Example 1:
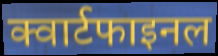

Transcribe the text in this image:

क्वार्टफाइनल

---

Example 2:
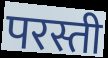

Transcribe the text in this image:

परस्ती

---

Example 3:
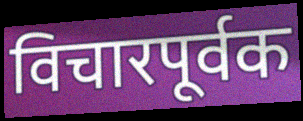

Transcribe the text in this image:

विचारपूर्वक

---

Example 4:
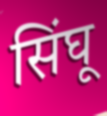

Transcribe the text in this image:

सिंघू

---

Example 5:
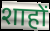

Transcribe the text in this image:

शाहों